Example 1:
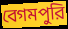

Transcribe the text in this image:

বেগমপুরি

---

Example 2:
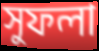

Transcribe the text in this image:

সুফলা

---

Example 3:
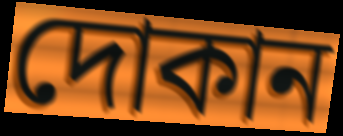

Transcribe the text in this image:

দোকান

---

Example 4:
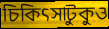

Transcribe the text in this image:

চিকিৎসাটুকুও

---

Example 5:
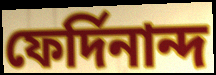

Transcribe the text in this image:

ফের্দিনান্দ